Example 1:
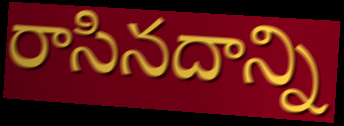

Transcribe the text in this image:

రాసినదాన్ని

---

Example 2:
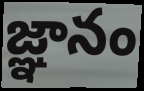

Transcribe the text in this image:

జ్ఞానం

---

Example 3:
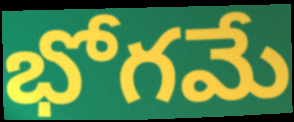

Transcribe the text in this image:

భోగమే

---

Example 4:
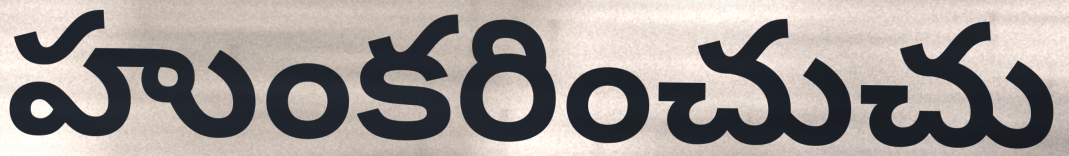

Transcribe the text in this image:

హుంకరించుచు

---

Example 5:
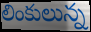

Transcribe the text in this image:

లింకులున్న